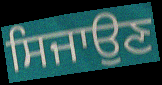
ਸਿਜਾਉਣ